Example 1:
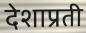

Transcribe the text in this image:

देशाप्रती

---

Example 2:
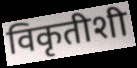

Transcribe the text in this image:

विकृतीशी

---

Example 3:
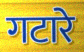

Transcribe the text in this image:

गटारे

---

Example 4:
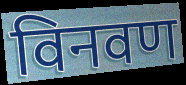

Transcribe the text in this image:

विनवण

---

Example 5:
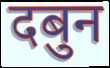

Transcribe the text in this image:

दबुन